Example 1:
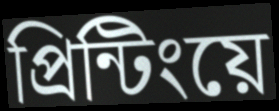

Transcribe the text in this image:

প্রিন্টিংয়ে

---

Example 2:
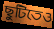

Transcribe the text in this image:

ছুটিতেও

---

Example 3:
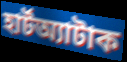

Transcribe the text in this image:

হার্টঅ্যাটাক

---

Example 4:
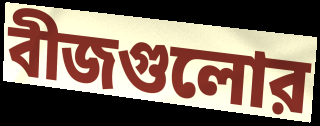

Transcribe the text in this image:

বীজগুলোর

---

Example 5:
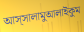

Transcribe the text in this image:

আস্সালামুআলাইকুম